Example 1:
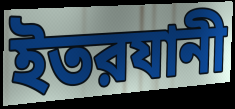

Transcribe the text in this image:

ইতরযানী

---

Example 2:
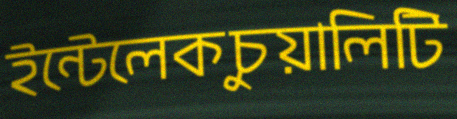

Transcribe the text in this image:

ইন্টেলেকচুয়ালিটি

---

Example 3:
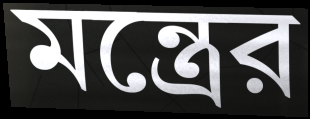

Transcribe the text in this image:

মন্ত্রের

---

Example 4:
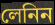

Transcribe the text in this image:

লেনিন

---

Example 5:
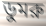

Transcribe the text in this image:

ডুমরু